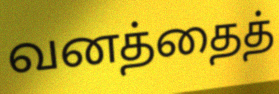
வனத்தைத்